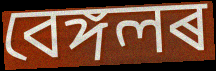
বেঙ্গলৰ